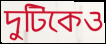
দুটিকেও